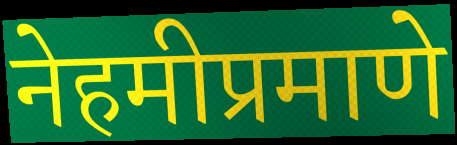
नेहमीप्रमाणे